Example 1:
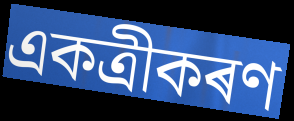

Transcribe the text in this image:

একত্ৰীকৰণ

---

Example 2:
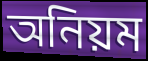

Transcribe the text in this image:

অনিয়ম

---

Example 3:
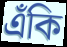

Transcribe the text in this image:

এঁকি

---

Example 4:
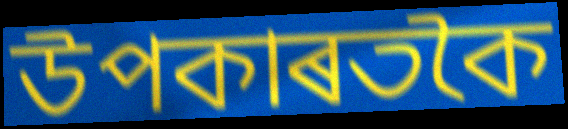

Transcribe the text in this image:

উপকাৰতকৈ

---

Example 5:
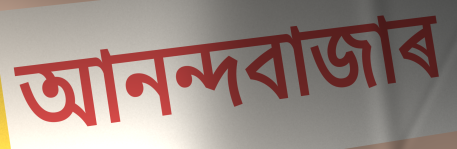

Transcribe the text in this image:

আনন্দবাজাৰ